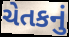
ચેતકનું